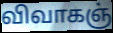
விவாகஞ்